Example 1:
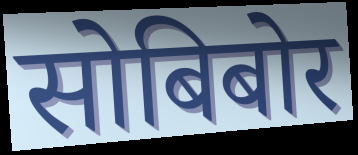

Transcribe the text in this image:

सोबिबोर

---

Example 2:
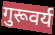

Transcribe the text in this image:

गुरूवर्य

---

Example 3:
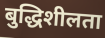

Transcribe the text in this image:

बुद्धिशीलता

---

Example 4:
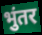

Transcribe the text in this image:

भुंतर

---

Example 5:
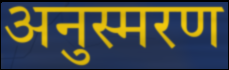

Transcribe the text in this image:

अनुस्मरण